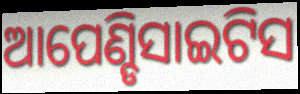
ଆପେଣ୍ଡିସାଇଟିସ